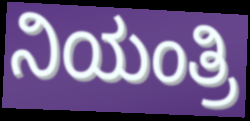
ನಿಯಂತ್ರಿ